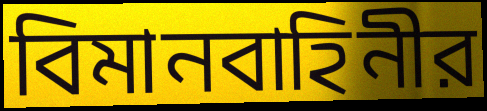
বিমানবাহিনীর